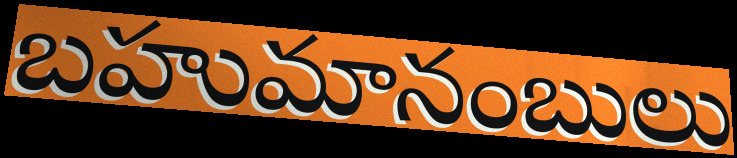
బహుమానంబులు